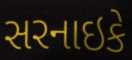
સરનાઇકે